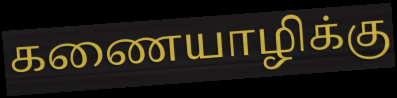
கணையாழிக்கு